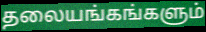
தலையங்கங்களும்